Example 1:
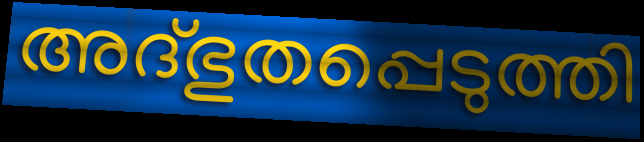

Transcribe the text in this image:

അദ്ഭുതപ്പെടുത്തി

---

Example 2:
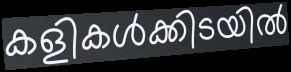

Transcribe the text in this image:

കളികൾക്കിടയിൽ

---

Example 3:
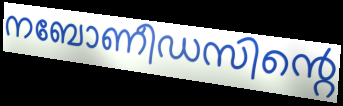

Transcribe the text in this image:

നബോണീഡസിന്റെ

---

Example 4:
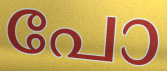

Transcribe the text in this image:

പോ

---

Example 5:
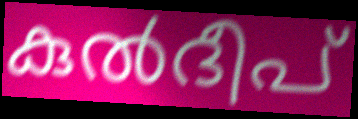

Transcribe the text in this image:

കുൽദീപ്